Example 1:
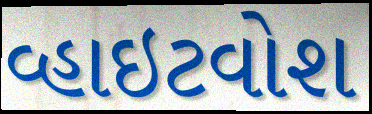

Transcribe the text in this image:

વ્હાઇટવોશ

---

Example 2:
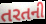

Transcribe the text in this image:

તરતની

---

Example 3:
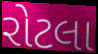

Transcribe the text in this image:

રોટલા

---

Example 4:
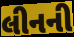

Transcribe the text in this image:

લીનની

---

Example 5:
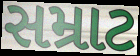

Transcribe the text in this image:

સમ્રાટ